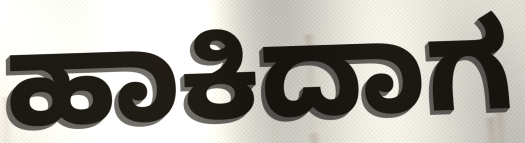
ಹಾಕಿದಾಗ